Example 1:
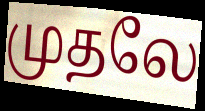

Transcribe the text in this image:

முதலே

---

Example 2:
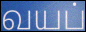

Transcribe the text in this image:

வயப்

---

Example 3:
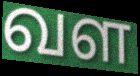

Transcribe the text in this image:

வள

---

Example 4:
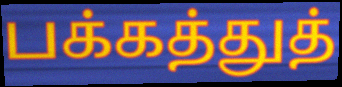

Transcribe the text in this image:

பக்கத்துத்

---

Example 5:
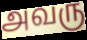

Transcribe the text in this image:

அவரு